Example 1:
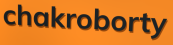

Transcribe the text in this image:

chakroborty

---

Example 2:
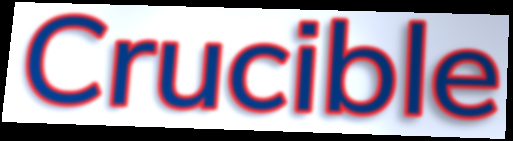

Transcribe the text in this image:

Crucible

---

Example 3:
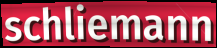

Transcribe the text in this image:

schliemann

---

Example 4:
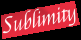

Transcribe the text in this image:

Sublimity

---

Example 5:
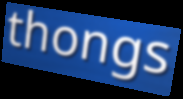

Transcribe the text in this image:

thongs